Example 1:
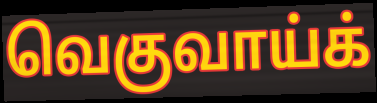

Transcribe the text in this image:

வெகுவாய்க்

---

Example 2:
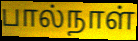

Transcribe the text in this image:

பால்நாள்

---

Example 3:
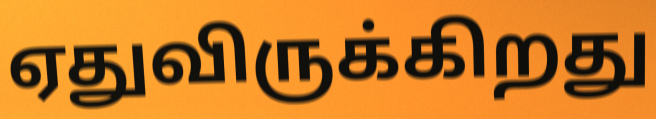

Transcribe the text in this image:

ஏதுவிருக்கிறது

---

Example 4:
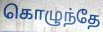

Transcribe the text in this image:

கொழுந்தே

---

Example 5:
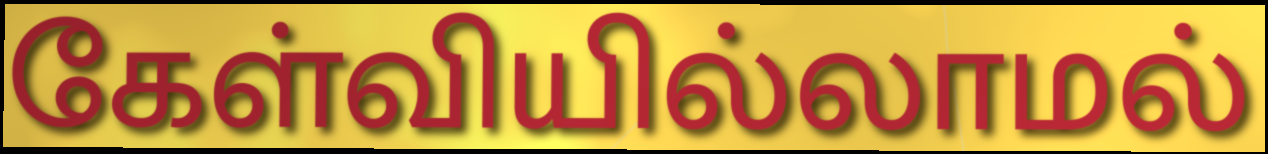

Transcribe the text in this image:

கேள்வியில்லாமல்